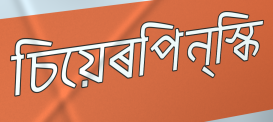
চিয়েৰপিন্‌স্কি